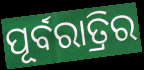
ପୂର୍ବରାତ୍ରିର